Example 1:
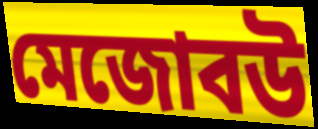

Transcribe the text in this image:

মেজোবউ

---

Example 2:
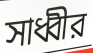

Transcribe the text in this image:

সাধ্বীর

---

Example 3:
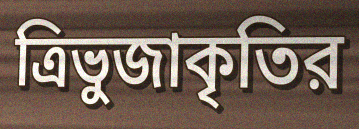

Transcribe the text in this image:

ত্রিভুজাকৃতির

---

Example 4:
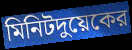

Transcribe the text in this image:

মিনিটদুয়েকের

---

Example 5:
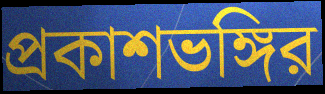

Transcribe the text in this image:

প্রকাশভঙ্গির